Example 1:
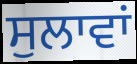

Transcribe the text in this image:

ਸੁਲਾਵਾਂ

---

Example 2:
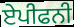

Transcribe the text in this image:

ਏਪੀਫਨੀ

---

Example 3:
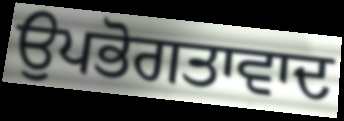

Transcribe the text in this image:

ਉਪਭੋਗਤਾਵਾਦ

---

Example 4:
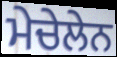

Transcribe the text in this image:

ਮੇਚੇਲੇਨ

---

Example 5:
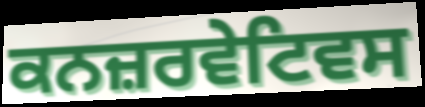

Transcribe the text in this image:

ਕਨਜ਼ਰਵੇਟਿਵਸ